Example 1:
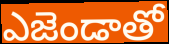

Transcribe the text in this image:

ఎజెండాతో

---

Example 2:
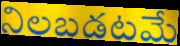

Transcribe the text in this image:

నిలబడటమే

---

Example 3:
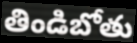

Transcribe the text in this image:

తిండిబోతు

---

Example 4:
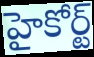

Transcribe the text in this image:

హైకోర్ట్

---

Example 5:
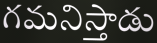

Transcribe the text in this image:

గమనిస్తాడు